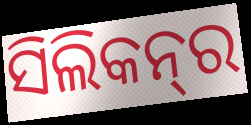
ସିଲିକନ୍‌ର